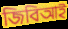
জিবিআই